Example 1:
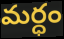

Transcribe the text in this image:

మర్ధం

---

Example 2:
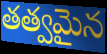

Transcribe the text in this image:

తత్వమైన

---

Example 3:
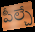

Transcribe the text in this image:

పీల్చే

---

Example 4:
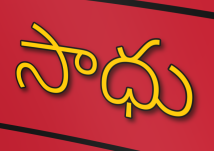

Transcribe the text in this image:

సాధు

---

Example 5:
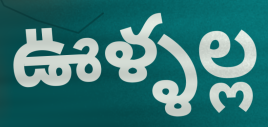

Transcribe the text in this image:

ఊళ్ళల్ల